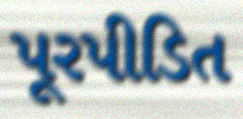
પૂરપીડિત